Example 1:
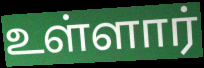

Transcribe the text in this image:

உள்ளார்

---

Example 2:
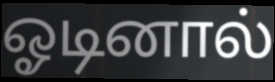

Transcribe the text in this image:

ஓடினால்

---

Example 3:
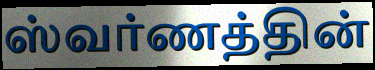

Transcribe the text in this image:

ஸ்வர்ணத்தின்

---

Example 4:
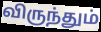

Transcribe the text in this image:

விருந்தும்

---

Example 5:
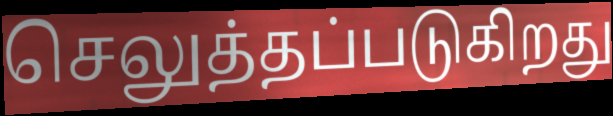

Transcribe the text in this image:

செலுத்தப்படுகிறது